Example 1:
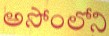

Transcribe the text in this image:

అసోంలోని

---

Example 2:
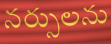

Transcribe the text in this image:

నర్సులను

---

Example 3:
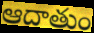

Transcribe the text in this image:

ఆదాతుం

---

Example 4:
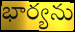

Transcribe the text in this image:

భార్యను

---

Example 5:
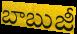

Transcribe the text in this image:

బాబుజీ